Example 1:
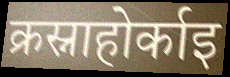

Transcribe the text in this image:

क्रस्नाहोर्काइ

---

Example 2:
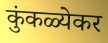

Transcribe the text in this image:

कुंकळ्येकर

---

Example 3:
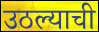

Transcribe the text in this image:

उठल्याची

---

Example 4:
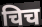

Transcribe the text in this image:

चिच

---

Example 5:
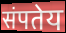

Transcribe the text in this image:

संपतेय